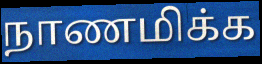
நாணமிக்க